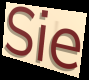
Sie